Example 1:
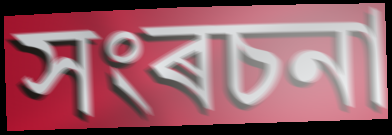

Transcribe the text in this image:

সংৰচনা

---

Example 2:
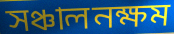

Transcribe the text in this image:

সঞ্চালনক্ষম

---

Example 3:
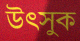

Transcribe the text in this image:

উৎসুক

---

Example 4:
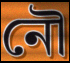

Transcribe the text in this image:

নৌ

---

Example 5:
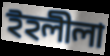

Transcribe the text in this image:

ইহলীলা